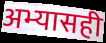
अभ्यासही